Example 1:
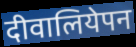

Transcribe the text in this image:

दीवालियेपन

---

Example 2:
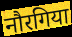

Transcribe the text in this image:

नौरगिया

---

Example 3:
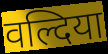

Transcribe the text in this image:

वल्दिया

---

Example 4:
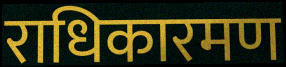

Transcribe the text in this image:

राधिकारमण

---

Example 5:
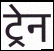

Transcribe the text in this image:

ट्रेन